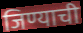
जिण्याची